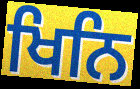
ਖਿਨਿ